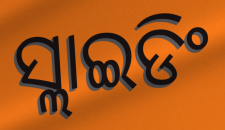
ସ୍ଲାଇଡିଂ